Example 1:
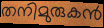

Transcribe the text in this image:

തനിമുരുകൻ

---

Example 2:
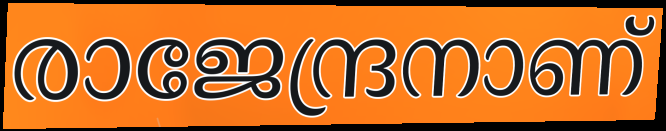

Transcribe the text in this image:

രാജേന്ദ്രനാണ്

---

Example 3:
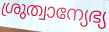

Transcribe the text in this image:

ശ്രുത്വാന്യേഭ്യ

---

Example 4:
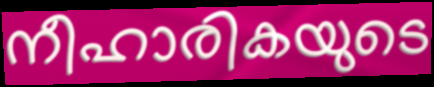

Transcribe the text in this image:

നീഹാരികയുടെ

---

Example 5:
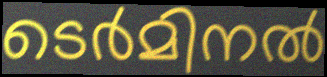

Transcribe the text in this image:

ടെർമിനൽ